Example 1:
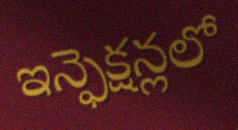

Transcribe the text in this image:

ఇన్ఫెక్షన్లలో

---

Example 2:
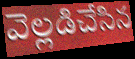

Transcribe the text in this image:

వెల్లడిచేసిన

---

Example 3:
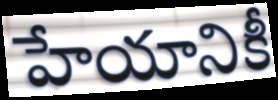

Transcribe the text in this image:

హేయానికీ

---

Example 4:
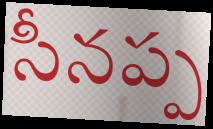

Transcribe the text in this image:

సీనప్ప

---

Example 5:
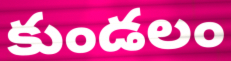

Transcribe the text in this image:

కుండలం